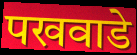
पखवाडे